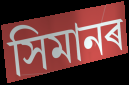
সিমানৰ